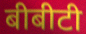
बीबीटी